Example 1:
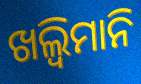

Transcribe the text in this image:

ଖଲ୍ୱିମାନି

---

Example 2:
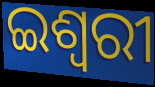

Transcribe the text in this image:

ଇଶ୍ୱରୀ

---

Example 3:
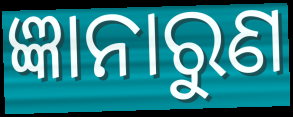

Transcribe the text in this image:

ଜ୍ଞାନାରୁଣ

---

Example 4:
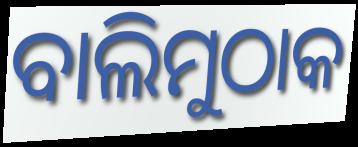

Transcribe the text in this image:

ବାଲିମୁଠାକ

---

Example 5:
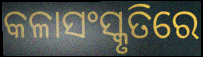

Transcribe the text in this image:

କଳାସଂସ୍କୃତିରେ